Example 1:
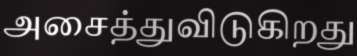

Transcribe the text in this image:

அசைத்துவிடுகிறது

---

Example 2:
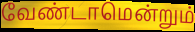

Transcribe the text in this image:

வேண்டாமென்றும்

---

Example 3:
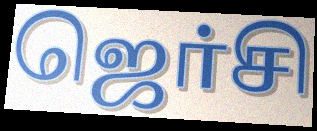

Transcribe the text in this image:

ஜெர்சி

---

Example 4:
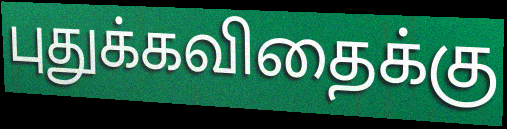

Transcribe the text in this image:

புதுக்கவிதைக்கு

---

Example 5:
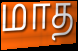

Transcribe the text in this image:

மாத